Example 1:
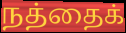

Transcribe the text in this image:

நத்தைக்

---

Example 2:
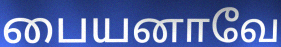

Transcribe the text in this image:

பையனாவே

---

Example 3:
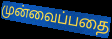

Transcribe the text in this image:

முன்வைப்பதை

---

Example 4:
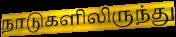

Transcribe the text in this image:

நாடுகளிலிருந்து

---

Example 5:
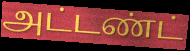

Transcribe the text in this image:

அட்டண்ட்